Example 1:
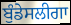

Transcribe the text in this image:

ਬੁੰਡੇਸਲੀਗਾ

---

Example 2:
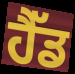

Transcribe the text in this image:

ਹੈੱਡ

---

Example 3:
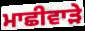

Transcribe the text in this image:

ਮਾਛੀਵਾੜੇ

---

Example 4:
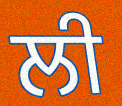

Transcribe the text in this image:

ਲੀ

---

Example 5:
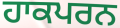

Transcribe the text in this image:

ਹਾਕਪਰਨ